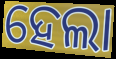
ହେଲା